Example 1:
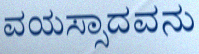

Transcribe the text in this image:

ವಯಸ್ಸಾದವನು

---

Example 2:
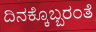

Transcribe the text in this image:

ದಿನಕ್ಕೊಬ್ಬರಂತೆ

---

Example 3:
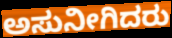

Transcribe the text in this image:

ಅಸುನೀಗಿದರು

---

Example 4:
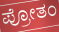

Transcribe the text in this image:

ಪ್ರೋತಂ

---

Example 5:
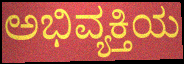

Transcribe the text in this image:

ಅಭಿವ್ಯಕ್ತಿಯ